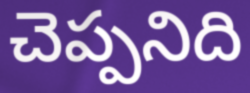
చెప్పనిది